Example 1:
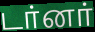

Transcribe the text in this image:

டர்னர்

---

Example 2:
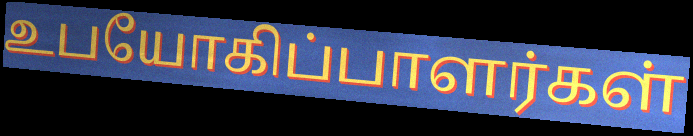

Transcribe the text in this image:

உபயோகிப்பாளர்கள்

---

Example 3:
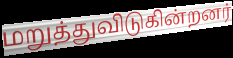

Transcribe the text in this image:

மறுத்துவிடுகின்றனர்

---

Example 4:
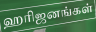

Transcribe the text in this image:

ஹரிஜனங்கள்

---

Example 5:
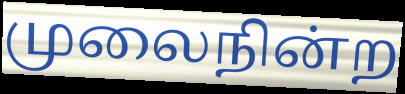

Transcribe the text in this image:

முலைநின்ற